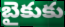
బైకుకు